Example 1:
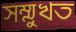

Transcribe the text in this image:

সম্মুখত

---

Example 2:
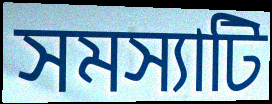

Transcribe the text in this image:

সমস্যাটি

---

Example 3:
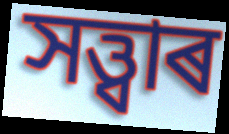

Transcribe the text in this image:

সত্ত্বাৰ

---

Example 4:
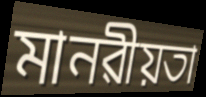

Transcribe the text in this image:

মানৱীয়তা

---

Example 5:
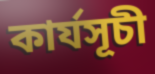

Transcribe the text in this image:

কাৰ্যসূচী